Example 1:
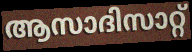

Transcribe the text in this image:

ആസാദിസാറ്റ്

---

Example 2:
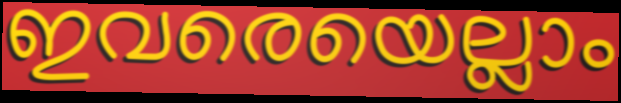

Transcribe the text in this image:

ഇവരെയെല്ലാം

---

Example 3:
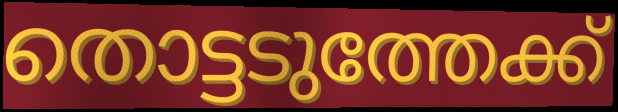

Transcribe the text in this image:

തൊട്ടടുത്തേക്ക്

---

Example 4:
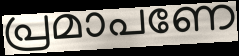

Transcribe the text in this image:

പ്രമാപണേ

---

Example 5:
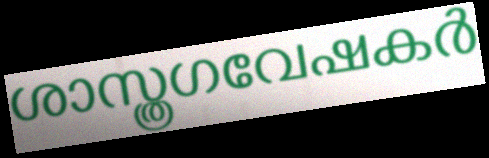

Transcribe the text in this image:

ശാസ്ത്രഗവേഷകർ